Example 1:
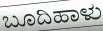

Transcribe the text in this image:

ಬೂದಿಹಾಳು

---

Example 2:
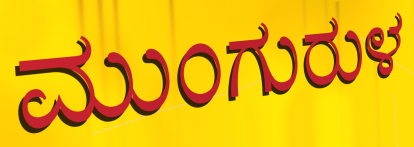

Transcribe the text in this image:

ಮುಂಗುರುಳ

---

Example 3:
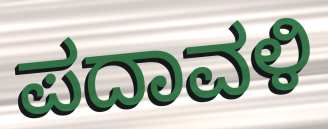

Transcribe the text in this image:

ಪದಾವಳಿ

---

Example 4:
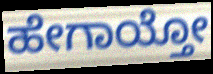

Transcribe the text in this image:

ಹೇಗಾಯ್ತೋ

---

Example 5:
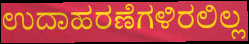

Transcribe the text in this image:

ಉದಾಹರಣೆಗಳಿರಲಿಲ್ಲ